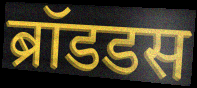
ब्रॉडडस